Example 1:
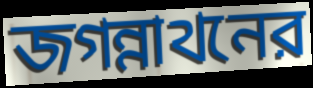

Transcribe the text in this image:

জগন্নাথনের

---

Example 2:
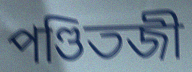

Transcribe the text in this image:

পণ্ডিতজী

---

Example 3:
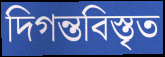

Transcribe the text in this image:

দিগন্তবিস্তৃত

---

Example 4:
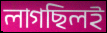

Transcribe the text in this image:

লাগছিলই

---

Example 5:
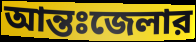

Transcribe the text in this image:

আন্তঃজেলার